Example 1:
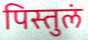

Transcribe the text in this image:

पिस्तुलं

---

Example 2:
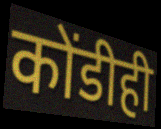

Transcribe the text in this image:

कोंडीही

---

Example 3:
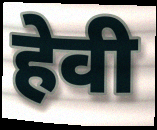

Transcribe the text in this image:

हेवी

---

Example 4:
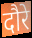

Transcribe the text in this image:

दौरे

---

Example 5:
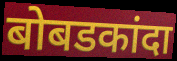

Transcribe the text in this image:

बोबडकांदा